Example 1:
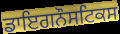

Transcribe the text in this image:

ਡਾਇਗਨੌਸਟਿਕਸ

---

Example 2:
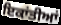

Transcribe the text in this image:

ਇਕਾਂਤੀਆਂ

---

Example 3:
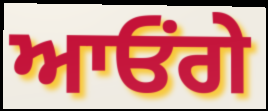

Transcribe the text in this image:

ਆਓਂਗੇ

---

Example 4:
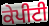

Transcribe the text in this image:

ਕੇਪੀਟੀ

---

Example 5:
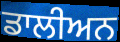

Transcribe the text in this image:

ਡਾਲੀਅਨ